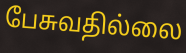
பேசுவதில்லை